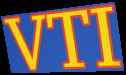
VTI